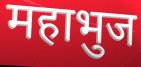
महाभुज